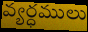
వ్యర్ధములు